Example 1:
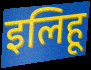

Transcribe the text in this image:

इलिहू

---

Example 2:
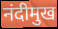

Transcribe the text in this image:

नंदीमुख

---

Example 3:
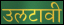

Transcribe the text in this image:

उलटावी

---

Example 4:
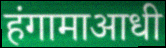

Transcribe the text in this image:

हंगामाआधी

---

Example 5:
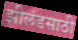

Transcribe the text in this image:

झीलंडसाठी